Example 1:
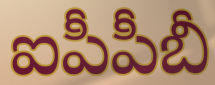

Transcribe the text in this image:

ఐపీపీబీ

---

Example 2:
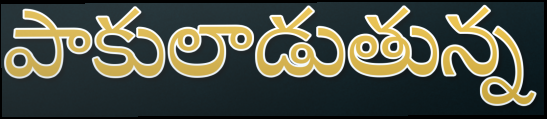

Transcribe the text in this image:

పాకులాడుతున్న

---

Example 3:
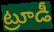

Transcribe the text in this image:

ట్రూడీ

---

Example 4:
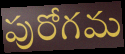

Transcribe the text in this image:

పురోగమ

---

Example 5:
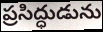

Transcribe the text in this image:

ప్రసిద్ధుడును